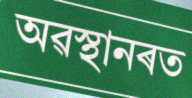
অৱস্থানৰত